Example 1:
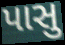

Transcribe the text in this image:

પાસુ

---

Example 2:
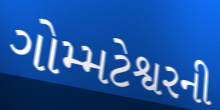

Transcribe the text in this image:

ગોમ્મટેશ્વરની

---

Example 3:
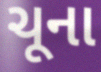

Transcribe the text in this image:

ચૂના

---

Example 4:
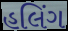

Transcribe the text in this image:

હલિંગ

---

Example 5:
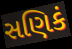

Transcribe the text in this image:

સણિકં